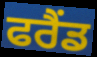
ਫਰੈਂਡ